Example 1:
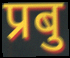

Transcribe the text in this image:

प्रबु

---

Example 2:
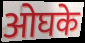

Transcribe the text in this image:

ओघके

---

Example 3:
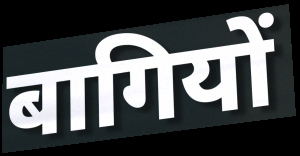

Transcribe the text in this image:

बागियों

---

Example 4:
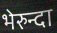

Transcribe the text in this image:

भेरुन्दा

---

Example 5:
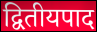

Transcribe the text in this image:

द्वितीयपाद